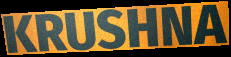
KRUSHNA